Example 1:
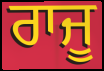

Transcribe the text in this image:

ਰਾਜੂ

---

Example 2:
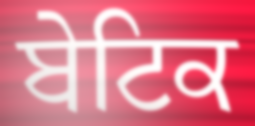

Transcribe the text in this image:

ਬੇਟਿਕ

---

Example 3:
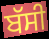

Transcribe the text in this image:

ਬੱਸੀ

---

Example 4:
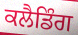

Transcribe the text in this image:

ਕਲੈਡਿੰਗ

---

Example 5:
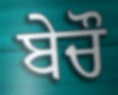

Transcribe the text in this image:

ਬੇਚੌ